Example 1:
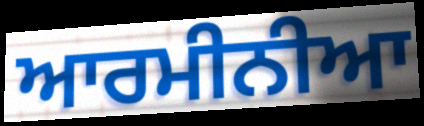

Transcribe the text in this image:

ਆਰਮੀਨੀਆ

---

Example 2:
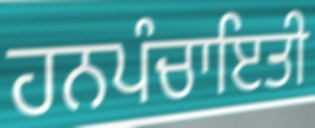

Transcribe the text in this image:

ਹਨਪੰਚਾਇਤੀ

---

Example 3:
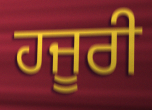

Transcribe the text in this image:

ਹਜੂਰੀ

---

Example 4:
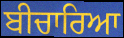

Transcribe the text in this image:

ਬੀਚਾਰਿਆ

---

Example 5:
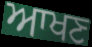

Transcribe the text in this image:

ਆਖਣ